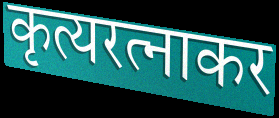
कृत्यरत्नाकर